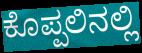
ಕೊಪ್ಪಲಿನಲ್ಲಿ